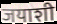
जयाशी